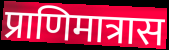
प्राणिमात्रास